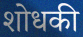
शोधकी